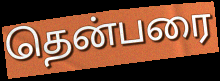
தென்பரை